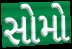
સોમો